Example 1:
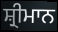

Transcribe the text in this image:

ਸ਼੍ਰੀਮਾਨ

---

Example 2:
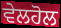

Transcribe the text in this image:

ਵੇਲਹੋਲ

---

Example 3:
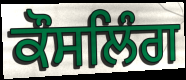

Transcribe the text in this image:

ਕੌਸਲਿੰਗ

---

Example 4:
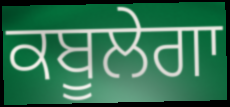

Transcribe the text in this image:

ਕਬੂਲੇਗਾ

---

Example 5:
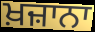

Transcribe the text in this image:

ਖ਼ਜ਼ਾਨਾ